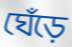
ঘেঁড়ে